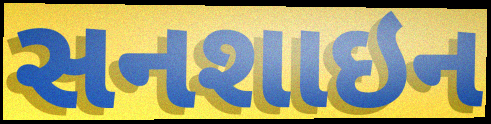
સનશાઇન